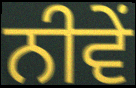
ਨੀਵੇਂ